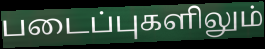
படைப்புகளிலும்